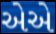
એએ